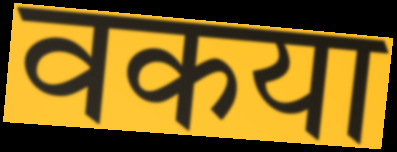
वकया